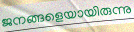
ജനങ്ങളെയായിരുന്നു